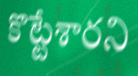
కొట్టేశారని